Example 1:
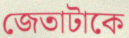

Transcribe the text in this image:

জেতাটাকে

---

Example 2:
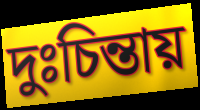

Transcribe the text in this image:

দুঃচিন্তায়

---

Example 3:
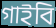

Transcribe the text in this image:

গাইবি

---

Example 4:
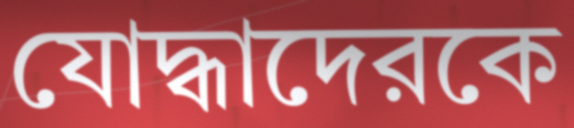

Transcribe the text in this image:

যোদ্ধাদেরকে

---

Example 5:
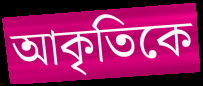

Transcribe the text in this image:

আকৃতিকে